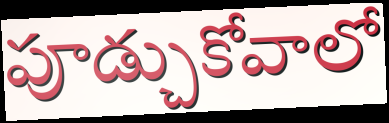
పూడ్చుకోవాలో